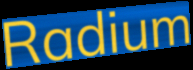
Radium